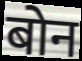
बोन